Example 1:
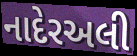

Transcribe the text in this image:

નાદેરઅલી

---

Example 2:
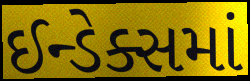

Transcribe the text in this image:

ઈન્ડેક્સમાં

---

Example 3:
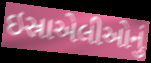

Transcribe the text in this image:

ઇસ્રાએલીઓનું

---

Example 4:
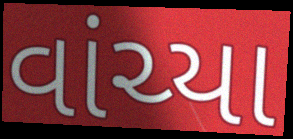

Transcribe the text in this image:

વાંચ્યા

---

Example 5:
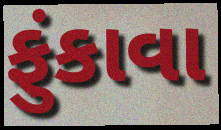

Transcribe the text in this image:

ફુંકાવા